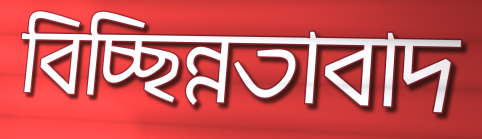
বিচ্ছিন্নতাবাদ